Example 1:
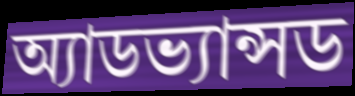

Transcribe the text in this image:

অ্যাডভ্যান্সড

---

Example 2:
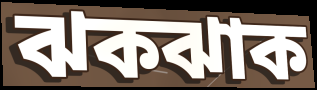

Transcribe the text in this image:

ঝকঝাক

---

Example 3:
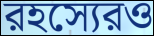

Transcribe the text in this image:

রহস্যেরও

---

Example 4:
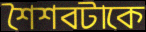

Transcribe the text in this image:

শৈশবটাকে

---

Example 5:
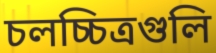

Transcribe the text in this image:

চলচ্চিত্রগুলি